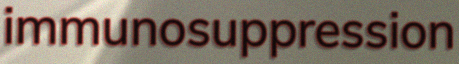
immunosuppression